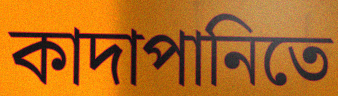
কাদাপানিতে